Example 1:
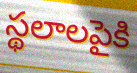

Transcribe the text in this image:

స్థలాలపైకి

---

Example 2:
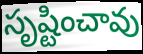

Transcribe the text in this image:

సృష్టించావు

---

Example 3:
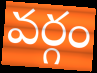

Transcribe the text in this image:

వర్గం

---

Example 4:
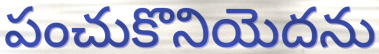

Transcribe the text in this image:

పంచుకొనియెదను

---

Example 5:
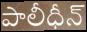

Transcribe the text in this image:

పాలీధీన్